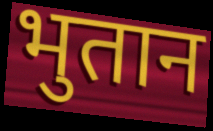
भुतान